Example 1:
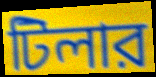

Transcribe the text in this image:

টিলার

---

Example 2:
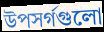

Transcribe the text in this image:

উপসর্গগুলো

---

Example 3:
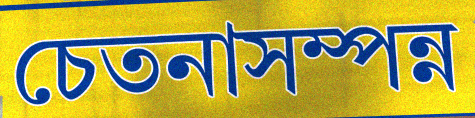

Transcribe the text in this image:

চেতনাসম্পন্ন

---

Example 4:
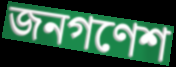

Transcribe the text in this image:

জনগণেশ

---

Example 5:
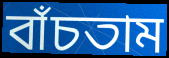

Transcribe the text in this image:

বাঁচতাম